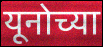
यूनोच्या